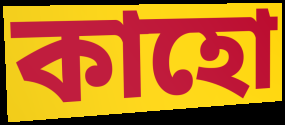
কাহো